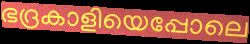
ഭദ്രകാളിയെപ്പോലെ